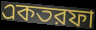
একতরফা